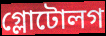
গ্লোটোলগ